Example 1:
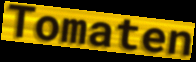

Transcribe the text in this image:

Tomaten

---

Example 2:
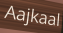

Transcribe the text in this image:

Aajkaal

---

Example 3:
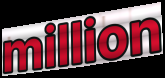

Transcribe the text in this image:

million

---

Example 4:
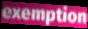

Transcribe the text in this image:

exemption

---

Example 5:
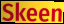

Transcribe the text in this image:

Skeen